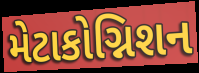
મેટાકોગ્નિશન